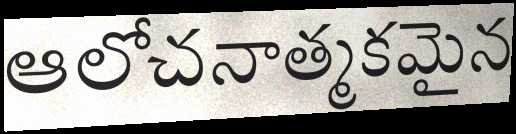
ఆలోచనాత్మకమైన